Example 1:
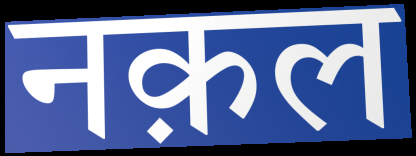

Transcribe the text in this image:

नक़ल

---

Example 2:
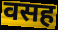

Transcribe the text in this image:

वसह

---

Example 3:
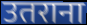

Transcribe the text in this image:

उतराना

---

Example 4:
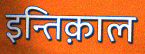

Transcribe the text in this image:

इन्तिक़ाल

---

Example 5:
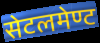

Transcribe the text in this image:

सेटलमेण्ट